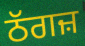
ਠੱਗਜ਼